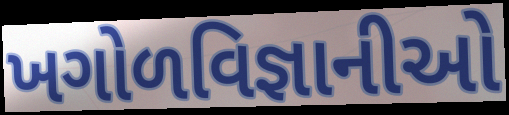
ખગોળવિજ્ઞાનીઓ